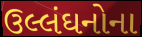
ઉલ્લંઘનોના